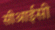
सीआईसी